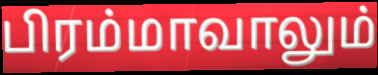
பிரம்மாவாலும்